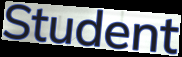
Student